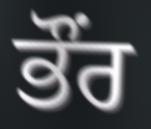
ਭੌਂਰ